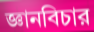
জ্ঞানবিচার